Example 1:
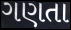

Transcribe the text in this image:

ગણતા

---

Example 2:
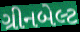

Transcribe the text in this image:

ગ્રીનબેલ્ટ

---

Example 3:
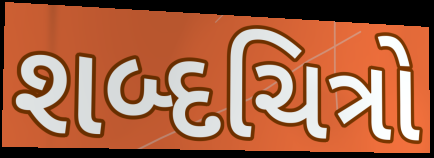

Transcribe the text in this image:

શબ્દચિત્રો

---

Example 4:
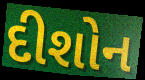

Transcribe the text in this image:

દીશોન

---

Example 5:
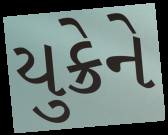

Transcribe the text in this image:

યુક્રેને